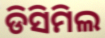
ଡିସିମିଲ